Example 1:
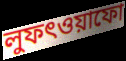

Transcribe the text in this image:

লুফৎওয়াফো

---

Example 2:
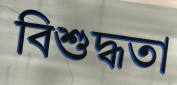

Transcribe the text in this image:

বিশুদ্ধতা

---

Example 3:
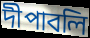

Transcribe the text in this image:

দীপাবলি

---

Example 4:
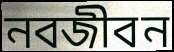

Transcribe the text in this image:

নবজীবন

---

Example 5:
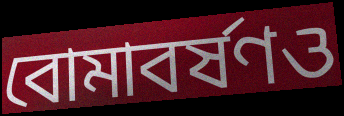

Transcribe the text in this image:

বোমাবর্ষণও